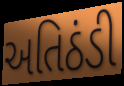
અતિઠંડી